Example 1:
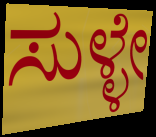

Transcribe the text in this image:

ಸುಳ್ಳೇ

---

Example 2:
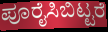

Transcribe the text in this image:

ಪೂರೈಸಿಬಿಟ್ಟರೆ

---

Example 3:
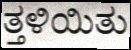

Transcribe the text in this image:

ತ್ತಳಿಯಿತು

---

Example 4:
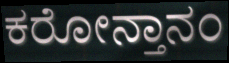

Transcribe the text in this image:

ಕರೋನ್ತಾನಂ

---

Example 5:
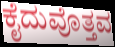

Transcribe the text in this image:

ಕೈದುವೊತ್ತವ